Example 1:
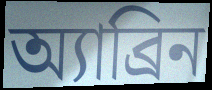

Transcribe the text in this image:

অ্যাব্রিন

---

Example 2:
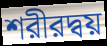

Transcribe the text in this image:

শরীরদ্বয়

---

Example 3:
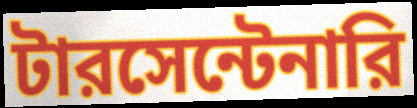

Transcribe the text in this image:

টারসেন্টেনারি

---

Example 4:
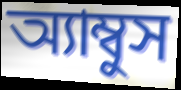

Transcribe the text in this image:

অ্যাম্বুস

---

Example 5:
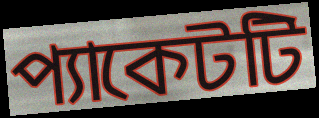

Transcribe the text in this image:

প্যাকেটটি